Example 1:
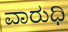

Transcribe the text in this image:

ವಾರುಧಿ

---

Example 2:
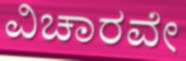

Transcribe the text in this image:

ವಿಚಾರವೇ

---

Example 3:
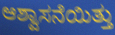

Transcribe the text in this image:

ಆಶ್ವಾಸನೆಯಿತ್ತು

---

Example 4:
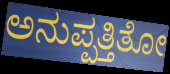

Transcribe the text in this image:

ಅನುಪ್ಪತ್ತಿತೋ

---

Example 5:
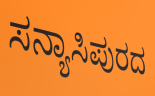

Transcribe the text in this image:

ಸನ್ಯಾಸಿಪುರದ